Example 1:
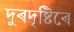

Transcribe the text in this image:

দুৰদৃষ্টিৰে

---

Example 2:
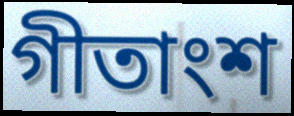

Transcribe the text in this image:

গীতাংশ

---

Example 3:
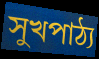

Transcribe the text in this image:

সুখপাঠ্য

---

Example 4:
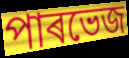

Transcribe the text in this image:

পাৰভেজ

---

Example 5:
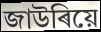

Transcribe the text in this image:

জাউৰিয়ে